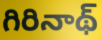
గిరినాథ్